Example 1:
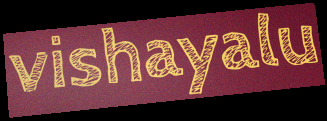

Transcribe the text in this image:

vishayalu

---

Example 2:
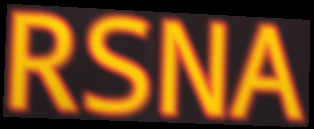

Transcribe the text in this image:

RSNA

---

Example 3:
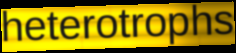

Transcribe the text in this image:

heterotrophs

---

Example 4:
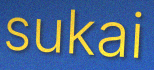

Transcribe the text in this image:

sukai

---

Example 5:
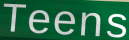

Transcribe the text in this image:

Teens